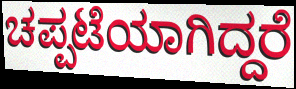
ಚಪ್ಪಟೆಯಾಗಿದ್ದರೆ